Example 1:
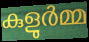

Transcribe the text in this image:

കുളുർമ്മ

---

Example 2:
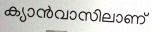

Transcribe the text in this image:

ക്യാൻവാസിലാണ്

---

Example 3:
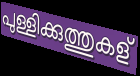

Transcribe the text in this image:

പുള്ളിക്കുത്തുകള്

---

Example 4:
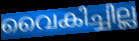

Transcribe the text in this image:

വൈകിച്ചില്ല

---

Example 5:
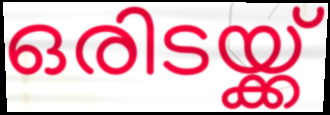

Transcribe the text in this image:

ഒരിടയ്ക്ക്